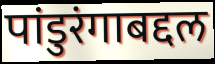
पांडुरंगाबद्दल